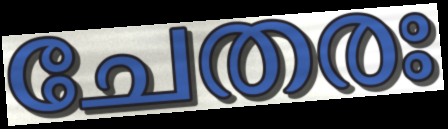
ചേതരഃ